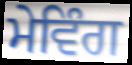
ਮੇਵਿੰਗ